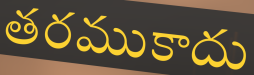
తరముకాదు